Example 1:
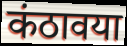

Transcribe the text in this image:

कंठावया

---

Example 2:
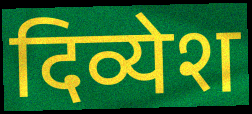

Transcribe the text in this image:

दिव्येश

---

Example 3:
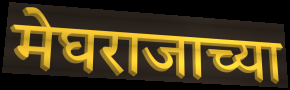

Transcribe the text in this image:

मेघराजाच्या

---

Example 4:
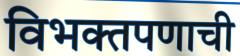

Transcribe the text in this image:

विभक्तपणाची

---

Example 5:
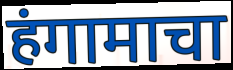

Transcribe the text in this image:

हंगामाचा